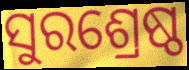
ସୁରଶ୍ରେଷ୍ଠ